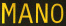
MANO